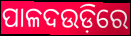
ପାଳଦଉଡ଼ିରେ